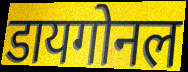
डायगोनल